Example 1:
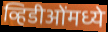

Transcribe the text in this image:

व्हिडीओंमध्ये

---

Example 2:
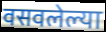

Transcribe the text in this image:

वसवलेल्या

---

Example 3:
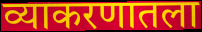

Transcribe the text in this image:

व्याकरणातला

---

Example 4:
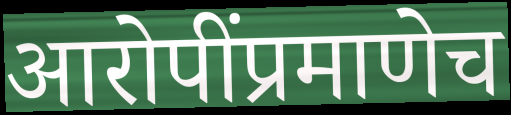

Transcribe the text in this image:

आरोपींप्रमाणेच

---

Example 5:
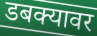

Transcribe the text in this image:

डबक्यावर